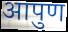
आपुण